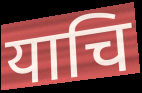
याचि